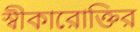
স্বীকারোক্তির